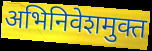
अभिनिवेशमुक्त